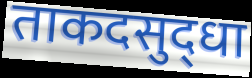
ताकदसुद्धा